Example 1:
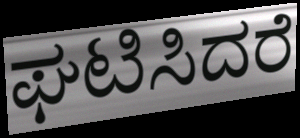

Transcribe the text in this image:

ಘಟಿಸಿದರೆ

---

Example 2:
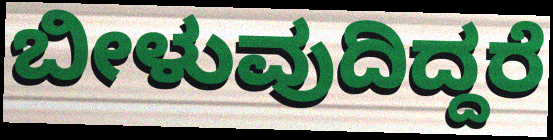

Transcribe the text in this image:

ಬೀಳುವುದಿದ್ದರೆ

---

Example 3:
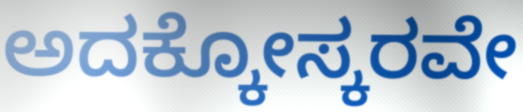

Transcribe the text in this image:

ಅದಕ್ಕೋಸ್ಕರವೇ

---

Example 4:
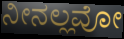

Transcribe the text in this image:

ನೀನಲ್ಲವೋ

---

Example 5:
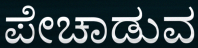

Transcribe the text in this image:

ಪೇಚಾಡುವ